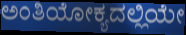
ಅಂತಿಯೋಕ್ಯದಲ್ಲಿಯೇ